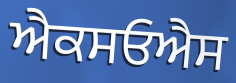
ਐਕਸਓਐਸ